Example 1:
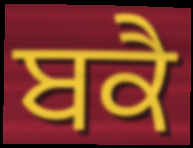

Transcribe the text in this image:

ਬਕੈ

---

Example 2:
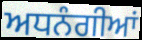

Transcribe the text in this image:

ਅਧਨੰਗੀਆਂ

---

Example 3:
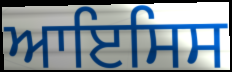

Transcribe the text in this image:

ਆਇਸਿਸ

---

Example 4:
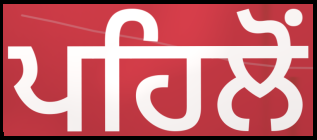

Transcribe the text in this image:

ਪਹਿਲੋਂ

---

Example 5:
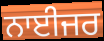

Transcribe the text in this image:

ਨਾਈਜਰ